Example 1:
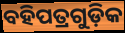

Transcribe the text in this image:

ବହିପତ୍ରଗୁଡ଼ିକ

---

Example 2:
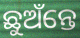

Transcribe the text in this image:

ଛୁଅଁନ୍ତେ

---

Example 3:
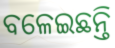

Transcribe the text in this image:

ବଳେଇଛନ୍ତି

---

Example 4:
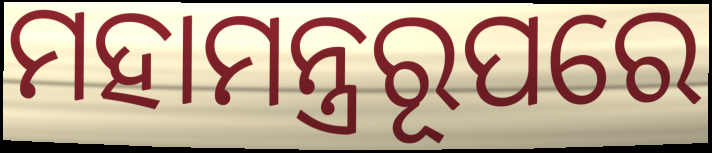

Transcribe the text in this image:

ମହାମନ୍ତ୍ରରୂପରେ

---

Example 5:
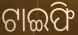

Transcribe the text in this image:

ଟାଇଫି